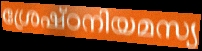
ശ്രേഷ്ഠനിയമസ്യ